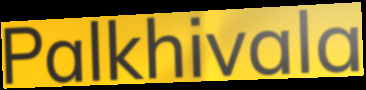
Palkhivala